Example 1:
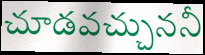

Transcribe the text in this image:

చూడవచ్చుననీ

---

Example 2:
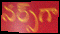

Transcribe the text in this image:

నర్స్‌గా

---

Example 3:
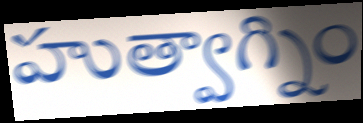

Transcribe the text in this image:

హుత్వాగ్నిం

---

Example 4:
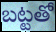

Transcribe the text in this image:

బట్టతో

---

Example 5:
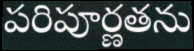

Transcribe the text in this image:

పరిపూర్ణతను